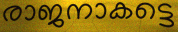
രാജനാകട്ടെ